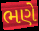
ભણે